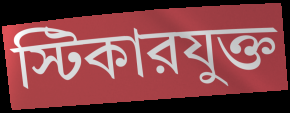
স্টিকারযুক্ত